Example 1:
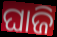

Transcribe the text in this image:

ଘାଜି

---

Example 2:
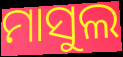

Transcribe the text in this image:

ମାସୁଲ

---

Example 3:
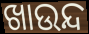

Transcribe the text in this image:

ଖାଉନ୍ଦ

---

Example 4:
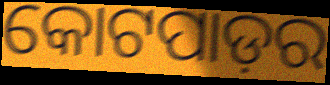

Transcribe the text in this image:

କୋଟପାଡ଼ର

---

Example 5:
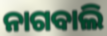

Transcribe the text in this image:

ନାଗବାଲି